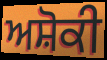
ਅਸ਼ੋਕੀ